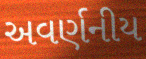
અવર્ણનીય